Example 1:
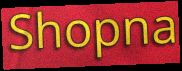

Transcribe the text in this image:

Shopna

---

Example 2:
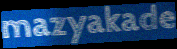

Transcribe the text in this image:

mazyakade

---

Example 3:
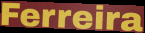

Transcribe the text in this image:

Ferreira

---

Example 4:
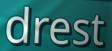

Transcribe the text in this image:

drest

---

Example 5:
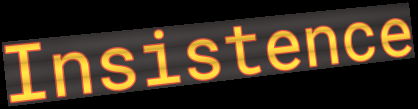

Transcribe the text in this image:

Insistence